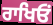
ਰਾਖਿਓਂ